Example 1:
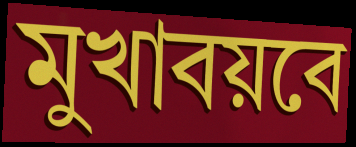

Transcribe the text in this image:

মুখাবয়বে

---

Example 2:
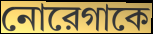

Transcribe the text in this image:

নোরেগাকে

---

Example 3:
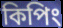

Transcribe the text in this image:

কিপিং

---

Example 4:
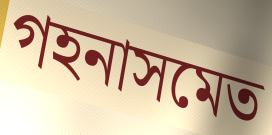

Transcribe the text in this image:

গহনাসমেত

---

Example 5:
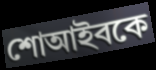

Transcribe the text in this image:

শোআইবকে